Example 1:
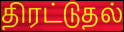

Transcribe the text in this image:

திரட்டுதல்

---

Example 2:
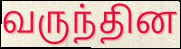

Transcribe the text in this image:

வருந்தின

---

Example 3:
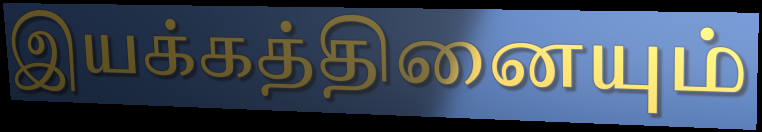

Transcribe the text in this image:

இயக்கத்தினையும்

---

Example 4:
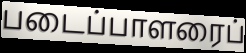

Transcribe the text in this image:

படைப்பாளரைப்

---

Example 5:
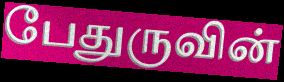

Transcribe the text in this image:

பேதுருவின்